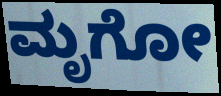
ಮೃಗೋ